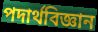
পদার্থবিজ্ঞান